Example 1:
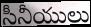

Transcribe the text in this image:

సీనీయులు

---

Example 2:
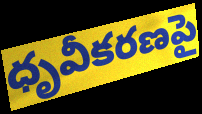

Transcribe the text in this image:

ధృవీకరణపై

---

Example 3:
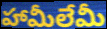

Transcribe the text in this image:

హామీలేమీ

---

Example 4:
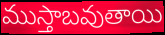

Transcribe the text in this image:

ముస్తాబవుతాయి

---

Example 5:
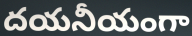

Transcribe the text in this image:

దయనీయంగా